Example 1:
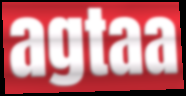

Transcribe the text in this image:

agtaa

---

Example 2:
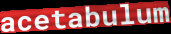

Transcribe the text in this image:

acetabulum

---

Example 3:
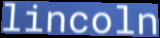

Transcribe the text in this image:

lincoln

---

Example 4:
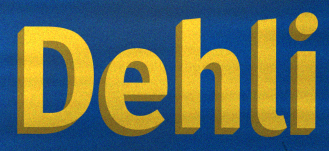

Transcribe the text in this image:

Dehli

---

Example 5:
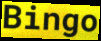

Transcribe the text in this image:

Bingo